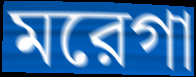
মরেগা